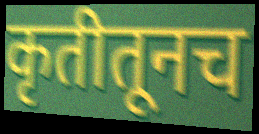
कृतीतूनच